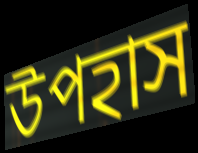
উপহাস